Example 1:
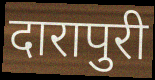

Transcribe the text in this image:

दारापुरी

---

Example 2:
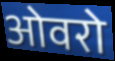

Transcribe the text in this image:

ओवरो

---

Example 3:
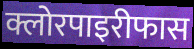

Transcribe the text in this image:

क्लोरपाइरीफास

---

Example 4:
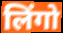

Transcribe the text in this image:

लिंगो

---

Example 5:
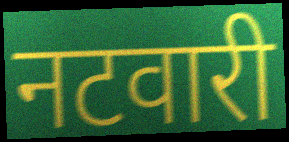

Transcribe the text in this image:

नटवारी